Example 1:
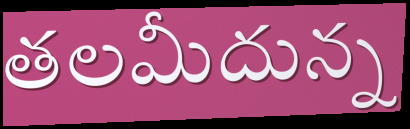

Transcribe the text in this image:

తలమీదున్న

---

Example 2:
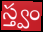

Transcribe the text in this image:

స్త్వం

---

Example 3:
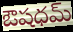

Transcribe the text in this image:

ఔషధమ్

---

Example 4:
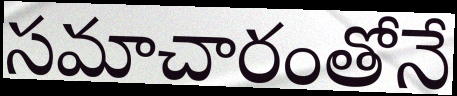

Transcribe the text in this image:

సమాచారంతోనే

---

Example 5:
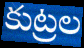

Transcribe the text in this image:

కుట్రల